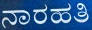
ನಾರಹತಿ